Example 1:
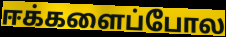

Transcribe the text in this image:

ஈக்களைப்போல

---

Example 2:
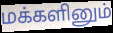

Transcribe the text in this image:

மக்களினும்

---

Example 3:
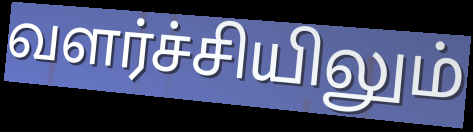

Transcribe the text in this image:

வளர்ச்சியிலும்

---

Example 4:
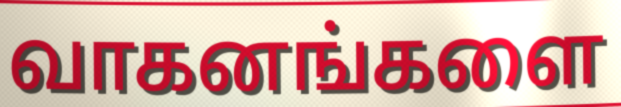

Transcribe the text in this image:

வாகனங்களை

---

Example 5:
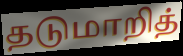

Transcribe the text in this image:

தடுமாறித்